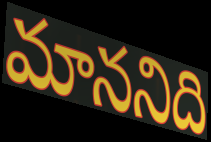
మాననిది